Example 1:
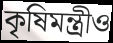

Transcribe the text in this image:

কৃষিমন্ত্রীও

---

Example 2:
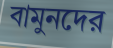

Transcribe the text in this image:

বামুনদের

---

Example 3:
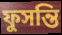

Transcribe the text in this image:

ফুসন্তি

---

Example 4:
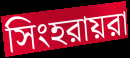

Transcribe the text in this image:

সিংহরায়রা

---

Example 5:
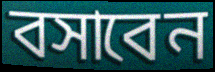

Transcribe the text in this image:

বসাবেন